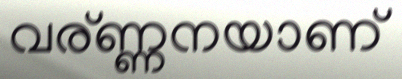
വര്ണ്ണനയാണ്